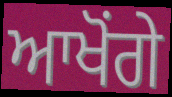
ਆਖੋਂਗੇ